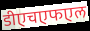
डीएचएफएल